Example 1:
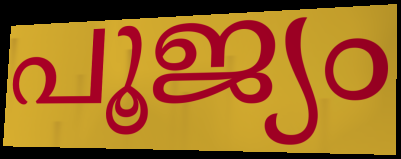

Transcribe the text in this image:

പൂജ്യം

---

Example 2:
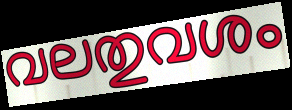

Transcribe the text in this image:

വലതുവശം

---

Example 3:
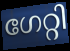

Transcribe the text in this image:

ഗേറ്റി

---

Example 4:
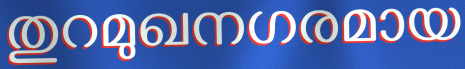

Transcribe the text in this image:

തുറമുഖനഗരമായ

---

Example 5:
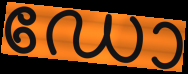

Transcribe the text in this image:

ഡോ